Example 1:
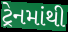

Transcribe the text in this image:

ટ્રેનમાંથી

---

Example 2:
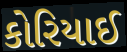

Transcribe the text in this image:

કોરિયાઈ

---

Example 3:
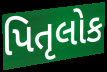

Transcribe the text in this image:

પિતૃલોક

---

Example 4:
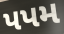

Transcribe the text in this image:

પપમ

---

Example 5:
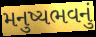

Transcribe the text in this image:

મનુષ્યભવનું